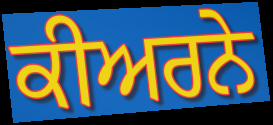
ਕੀਅਰਨੇ